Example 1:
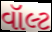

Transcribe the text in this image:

વૉલ્ટ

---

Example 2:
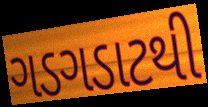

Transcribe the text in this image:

ગડગડાટથી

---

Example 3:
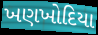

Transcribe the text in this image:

ખણખોદિયા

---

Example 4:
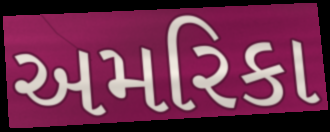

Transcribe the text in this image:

અમરિકા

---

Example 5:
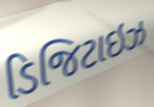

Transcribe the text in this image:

ડિજિટાઇઝ